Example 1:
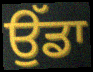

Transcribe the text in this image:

ਉੱਡਾ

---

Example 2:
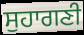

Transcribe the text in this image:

ਸੁਹਾਗਣੀ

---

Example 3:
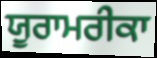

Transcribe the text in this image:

ਯੂਰਾਮਰੀਕਾ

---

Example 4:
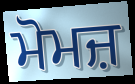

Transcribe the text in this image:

ਮੋਮਜ਼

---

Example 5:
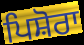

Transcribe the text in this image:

ਪਿਸ਼ੋਰਾ